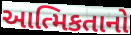
આત્મિકતાનો